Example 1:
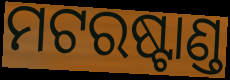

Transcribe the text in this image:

ମଟରଷ୍ଟାଣ୍ଡ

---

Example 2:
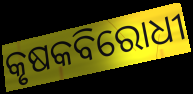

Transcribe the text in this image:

କୃଷକବିରୋଧୀ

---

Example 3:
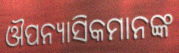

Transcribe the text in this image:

ଔପନ୍ୟାସିକମାନଙ୍କ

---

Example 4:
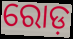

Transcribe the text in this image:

ରୋଡ଼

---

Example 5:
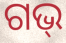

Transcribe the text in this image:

ଗଭ୍